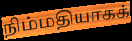
நிம்மதியாகக்